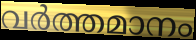
വർത്തമാനം